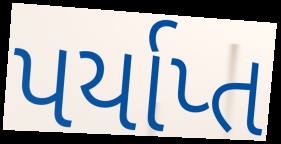
પર્યાપ્ત